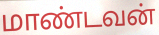
மாண்டவன்